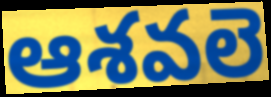
ఆశవలె